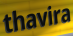
thavira